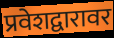
प्रवेशद्वारावर